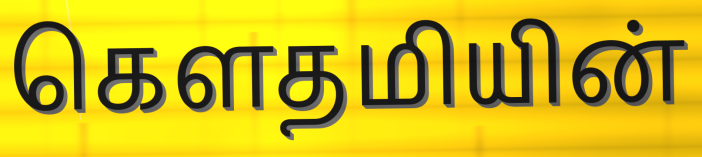
கெளதமியின்